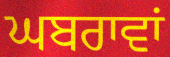
ਘਬਰਾਵਾਂ